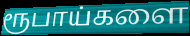
ரூபாய்களை